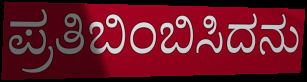
ಪ್ರತಿಬಿಂಬಿಸಿದನು